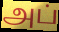
அப்